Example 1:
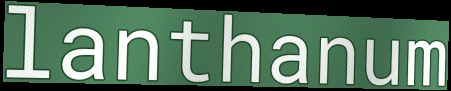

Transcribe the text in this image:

lanthanum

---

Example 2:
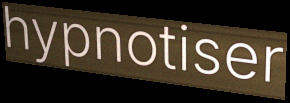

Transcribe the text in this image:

hypnotiser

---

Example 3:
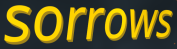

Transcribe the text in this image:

sorrows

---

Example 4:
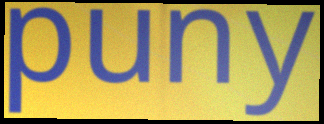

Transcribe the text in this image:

puny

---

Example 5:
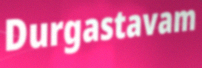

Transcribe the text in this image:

Durgastavam